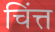
चिंत्त